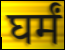
घर्मं